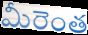
మీరెంత